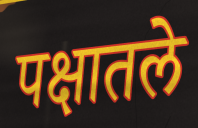
पक्षातले